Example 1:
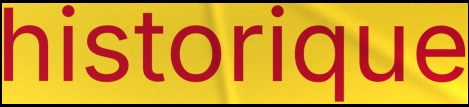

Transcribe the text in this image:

historique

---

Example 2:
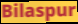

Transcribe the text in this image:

Bilaspur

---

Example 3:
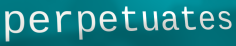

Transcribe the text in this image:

perpetuates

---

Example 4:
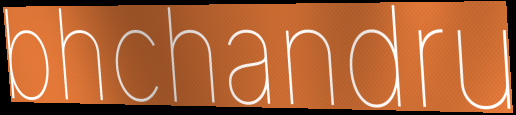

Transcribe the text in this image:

bhchandru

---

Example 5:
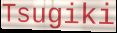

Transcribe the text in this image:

Tsugiki